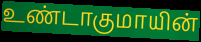
உண்டாகுமாயின்